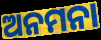
ଅନମନା